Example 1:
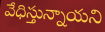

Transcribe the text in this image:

వేధిస్తున్నాయని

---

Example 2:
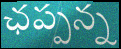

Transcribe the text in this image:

ఛప్పన్న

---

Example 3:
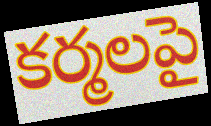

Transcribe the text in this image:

కర్మలపై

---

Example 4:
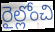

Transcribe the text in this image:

రైల్లోంచి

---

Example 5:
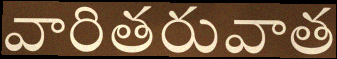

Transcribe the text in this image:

వారితరువాత